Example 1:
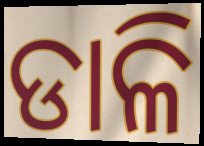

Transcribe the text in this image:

ଡାଳି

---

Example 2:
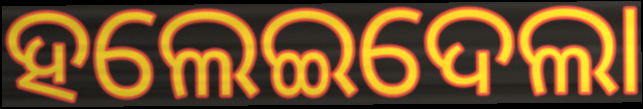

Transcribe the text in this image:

ହଲେଇଦେଲା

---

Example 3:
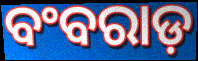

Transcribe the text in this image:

ବଂବରାଡ଼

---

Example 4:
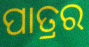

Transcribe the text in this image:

ପାତ୍ରର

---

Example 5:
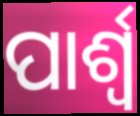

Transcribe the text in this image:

ପାର୍ଶ୍ୱ